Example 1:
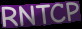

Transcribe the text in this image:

RNTCP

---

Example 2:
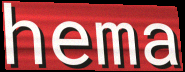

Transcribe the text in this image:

hema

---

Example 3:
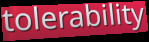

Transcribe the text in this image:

tolerability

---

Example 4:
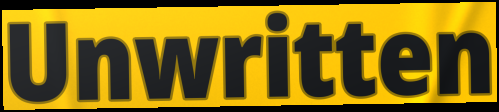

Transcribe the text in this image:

Unwritten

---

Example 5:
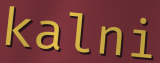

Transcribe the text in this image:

kalni